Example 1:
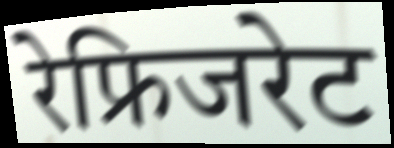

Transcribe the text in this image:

रेफ्रिजरेट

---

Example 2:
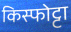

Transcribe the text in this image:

किस्फोट्टा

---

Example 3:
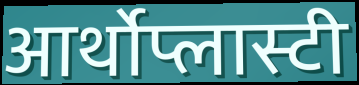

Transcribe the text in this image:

आर्थोप्लास्टी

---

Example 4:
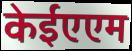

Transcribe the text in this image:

केईएएम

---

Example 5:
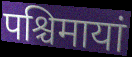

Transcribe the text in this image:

पश्चिमायां